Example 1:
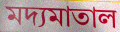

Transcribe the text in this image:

মদ্যমাতাল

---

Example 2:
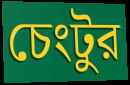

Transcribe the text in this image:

চেংটুর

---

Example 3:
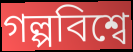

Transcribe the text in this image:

গল্পবিশ্বে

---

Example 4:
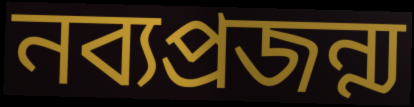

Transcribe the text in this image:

নব্যপ্রজন্ম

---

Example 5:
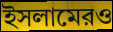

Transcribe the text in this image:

ইসলামেরও